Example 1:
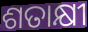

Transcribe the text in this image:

ଶତାକ୍ଷୀ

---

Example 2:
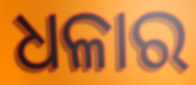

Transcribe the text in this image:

ଧଳାର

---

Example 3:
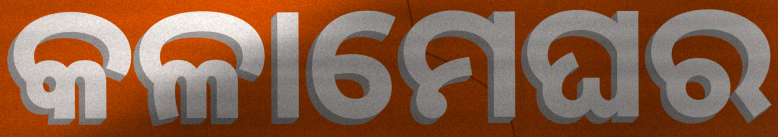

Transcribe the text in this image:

କଳାମେଘର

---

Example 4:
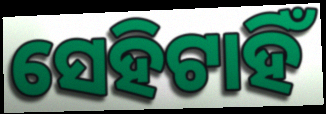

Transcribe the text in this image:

ସେହିଟାହିଁ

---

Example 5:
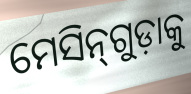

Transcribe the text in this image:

ମେସିନ୍‌ଗୁଡ଼ାକୁ